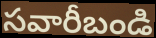
సవారీబండి